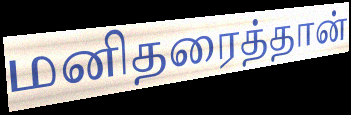
மனிதரைத்தான்